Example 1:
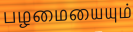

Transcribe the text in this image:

பழமையையும்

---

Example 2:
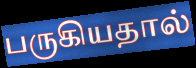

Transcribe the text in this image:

பருகியதால்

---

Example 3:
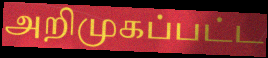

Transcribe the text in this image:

அறிமுகப்பட்ட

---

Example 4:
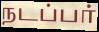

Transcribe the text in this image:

நடப்பர்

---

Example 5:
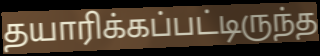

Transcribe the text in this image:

தயாரிக்கப்பட்டிருந்த